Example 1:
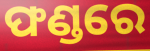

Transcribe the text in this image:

ଫଣ୍ଡରେ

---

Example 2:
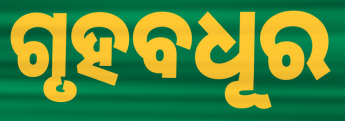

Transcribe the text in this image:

ଗୃହବଧୂର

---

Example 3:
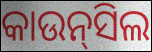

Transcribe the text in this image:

କାଉନ୍‍ସିଲ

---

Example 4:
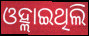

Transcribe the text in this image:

ଓହ୍ଲାଇଥିଲି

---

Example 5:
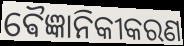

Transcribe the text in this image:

ଵୈଜ୍ଞାନିକୀକରଣ